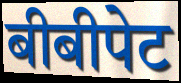
बीबीपेट